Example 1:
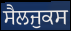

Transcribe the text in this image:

ਸੈਲਜੁਕਸ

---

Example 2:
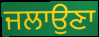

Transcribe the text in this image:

ਜਲਾਉਣਾ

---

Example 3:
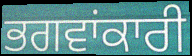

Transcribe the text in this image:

ਭਗਵਾਂਕਾਰੀ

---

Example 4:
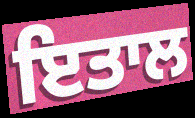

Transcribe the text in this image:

ਇਤਾਲ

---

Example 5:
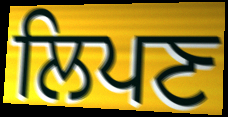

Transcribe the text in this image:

ਲਿਪਣ